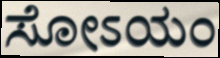
ಸೋಽಯಂ